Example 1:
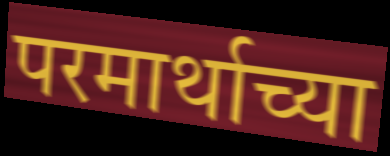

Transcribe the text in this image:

परमार्थाच्या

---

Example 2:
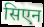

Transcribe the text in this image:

सिएन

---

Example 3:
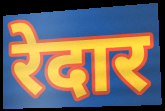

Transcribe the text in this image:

रेदार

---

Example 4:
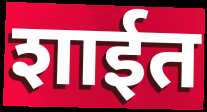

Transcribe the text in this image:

शाईत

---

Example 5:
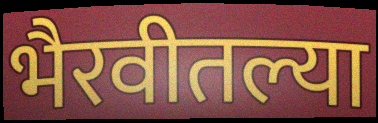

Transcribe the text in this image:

भैरवीतल्या